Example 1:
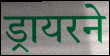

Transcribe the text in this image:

ड्रायरने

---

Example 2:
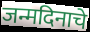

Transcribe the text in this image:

जन्मदिनाचे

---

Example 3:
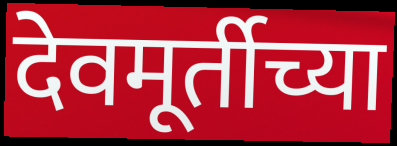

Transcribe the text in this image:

देवमूर्तीच्या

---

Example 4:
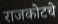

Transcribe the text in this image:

राजकोटचे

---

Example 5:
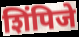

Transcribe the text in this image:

शिंपिजे